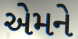
એમને